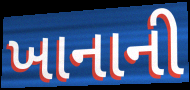
ખાનાની